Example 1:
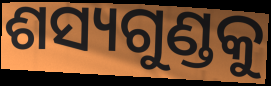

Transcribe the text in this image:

ଶସ୍ୟଗୁଣ୍ଡକୁ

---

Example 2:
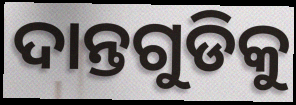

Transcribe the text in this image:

ଦାନ୍ତଗୁଡିକୁ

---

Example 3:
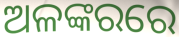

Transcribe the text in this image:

ଅଳଙ୍କରରେ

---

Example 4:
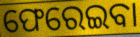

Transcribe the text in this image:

ଫେରେଇବା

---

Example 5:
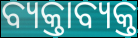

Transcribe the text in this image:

ବ୍ୟକ୍ତାବ୍ୟକ୍ତ